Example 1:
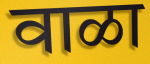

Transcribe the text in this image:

वाळा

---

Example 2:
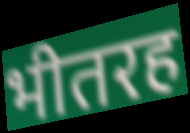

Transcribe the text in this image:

भीतरह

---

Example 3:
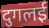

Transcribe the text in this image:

दुगलई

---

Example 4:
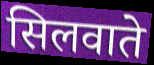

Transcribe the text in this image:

सिलवाते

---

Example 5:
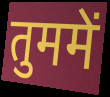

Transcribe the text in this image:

तुममें